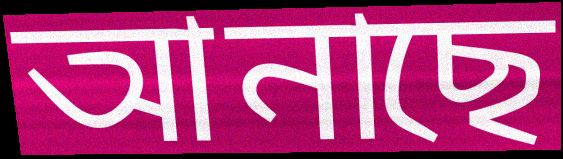
আনাছে